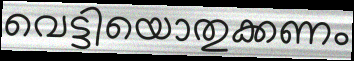
വെട്ടിയൊതുക്കണം